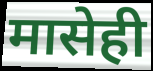
मासेही